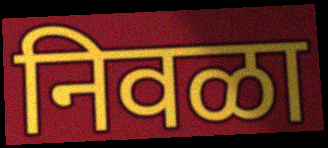
निवळा